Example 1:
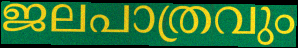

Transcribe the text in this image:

ജലപാത്രവും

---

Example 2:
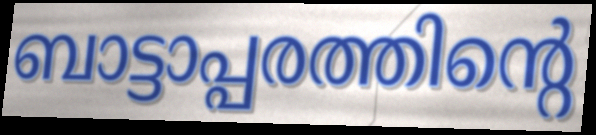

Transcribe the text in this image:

ബാട്ടാപ്പരത്തിന്റെ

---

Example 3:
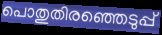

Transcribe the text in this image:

പൊതുതിരഞ്ഞെടുപ്പ്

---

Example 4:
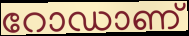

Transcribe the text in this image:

റോഡാണ്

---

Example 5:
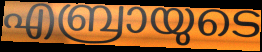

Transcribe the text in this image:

എബ്രായുടെ